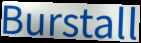
Burstall